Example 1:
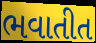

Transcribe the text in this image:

ભવાતીત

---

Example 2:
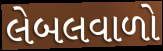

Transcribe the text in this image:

લેબલવાળો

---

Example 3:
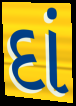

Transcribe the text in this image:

દાં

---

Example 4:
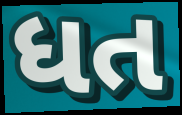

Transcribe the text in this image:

ધત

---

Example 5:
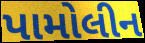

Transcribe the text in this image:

પામોલીન